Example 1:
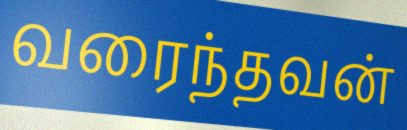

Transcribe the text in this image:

வரைந்தவன்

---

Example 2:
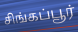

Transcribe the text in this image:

சிங்கப்பூர்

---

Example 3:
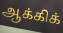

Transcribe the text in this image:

ஆக்கிக்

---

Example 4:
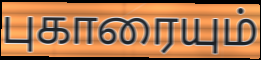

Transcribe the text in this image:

புகாரையும்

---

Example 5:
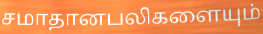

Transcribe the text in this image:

சமாதானபலிகளையும்